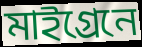
মাইগ্রেনে